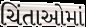
ચિંતાઓમાં